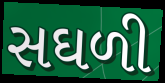
સઘળી